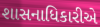
શાસનાધિકારીએ